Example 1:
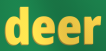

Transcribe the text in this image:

deer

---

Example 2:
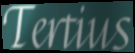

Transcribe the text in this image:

Tertius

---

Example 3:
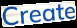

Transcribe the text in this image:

Create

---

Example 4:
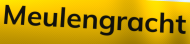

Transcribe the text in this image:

Meulengracht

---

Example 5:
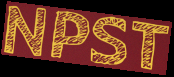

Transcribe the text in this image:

NPST